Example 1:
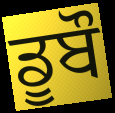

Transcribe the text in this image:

ਡੂਬੌ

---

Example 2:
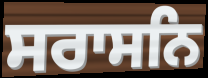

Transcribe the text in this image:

ਸਰਾਸਨਿ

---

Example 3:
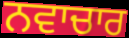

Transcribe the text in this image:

ਨਵਾਚਾਰ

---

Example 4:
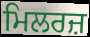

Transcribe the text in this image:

ਮਿਲਰਜ਼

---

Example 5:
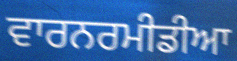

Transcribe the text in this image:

ਵਾਰਨਰਮੀਡੀਆ